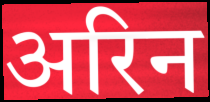
अरिन